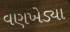
વણખેડ્યા